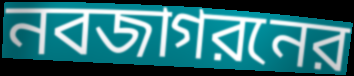
নবজাগরনের